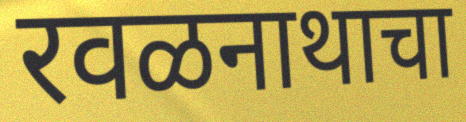
रवळनाथाचा